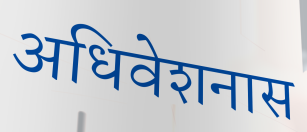
अधिवेशनास